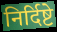
निर्दिष्टे